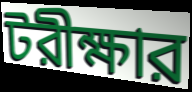
টরীক্ষার